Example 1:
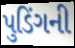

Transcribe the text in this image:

પુડિંગની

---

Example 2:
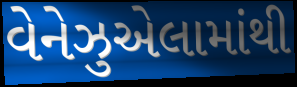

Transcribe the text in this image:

વેનેઝુએલામાંથી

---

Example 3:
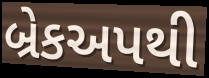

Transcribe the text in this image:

બ્રેકઅપથી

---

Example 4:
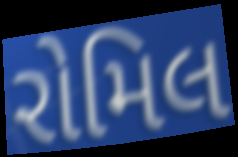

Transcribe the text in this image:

રોમિલ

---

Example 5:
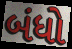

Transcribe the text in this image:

બંધો